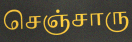
செஞ்சாரு